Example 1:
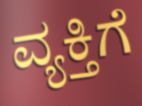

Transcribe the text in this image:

ವ್ಯಕ್ತಿಗೆ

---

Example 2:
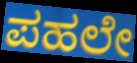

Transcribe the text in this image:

ಪಹಲೇ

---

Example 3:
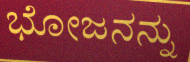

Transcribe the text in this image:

ಭೋಜನನ್ನು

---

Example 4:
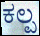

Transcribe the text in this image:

ಕಲ್ಪ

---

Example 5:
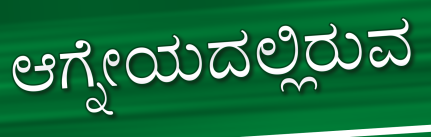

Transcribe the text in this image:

ಆಗ್ನೇಯದಲ್ಲಿರುವ